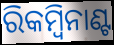
ରିକମ୍ବିନାଣ୍ଟ